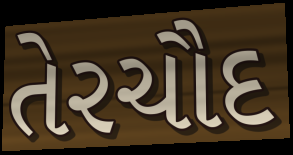
તેરચૌદ